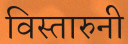
विस्तारुनी